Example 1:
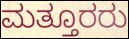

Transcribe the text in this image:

ಮತ್ತೂರರು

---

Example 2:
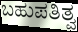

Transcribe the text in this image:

ಬಹುಪತಿತ್ವ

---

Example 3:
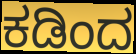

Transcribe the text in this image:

ಕಡಿಂದ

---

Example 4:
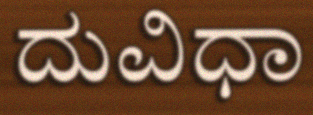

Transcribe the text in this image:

ದುವಿಧಾ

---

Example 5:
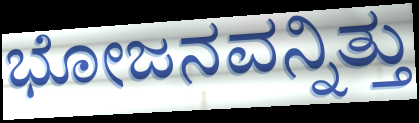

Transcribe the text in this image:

ಭೋಜನವನ್ನಿತ್ತು